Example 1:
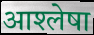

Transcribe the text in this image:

आश्‍लेषा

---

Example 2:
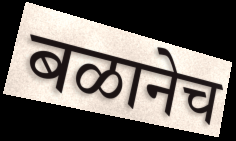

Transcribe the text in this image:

बळानेच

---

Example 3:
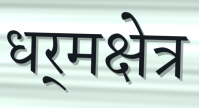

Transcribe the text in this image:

धर्मक्षेत्र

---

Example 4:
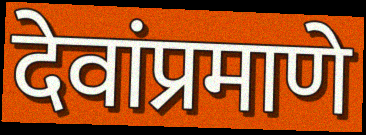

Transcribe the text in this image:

देवांप्रमाणे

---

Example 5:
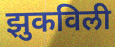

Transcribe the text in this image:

झुकविली